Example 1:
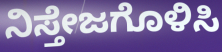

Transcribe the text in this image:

ನಿಸ್ತೇಜಗೊಳಿಸಿ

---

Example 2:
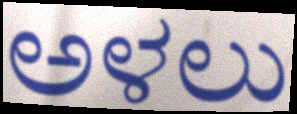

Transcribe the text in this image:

ಅಳಲು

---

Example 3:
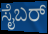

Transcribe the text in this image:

ಸೈಬರ್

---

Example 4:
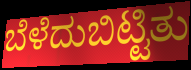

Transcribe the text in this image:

ಬೆಳೆದುಬಿಟ್ಟಿತು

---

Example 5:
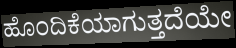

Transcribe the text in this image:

ಹೊಂದಿಕೆಯಾಗುತ್ತದೆಯೇ